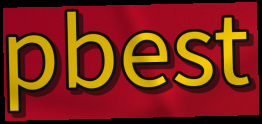
pbest